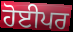
ਹੋਈਪਰ